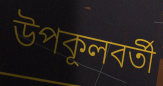
উপকূলবর্তী